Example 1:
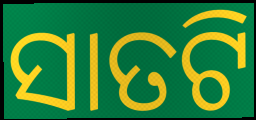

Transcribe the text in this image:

ସାତଟି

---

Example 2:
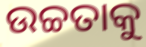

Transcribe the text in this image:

ଉଚ୍ଚତାକୁ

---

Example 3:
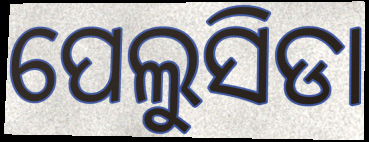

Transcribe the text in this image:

ପେଲୁସିଡା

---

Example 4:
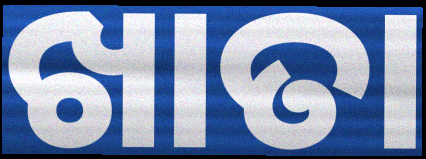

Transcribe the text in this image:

ଖାତା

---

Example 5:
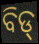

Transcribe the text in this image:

ବିଡ୍